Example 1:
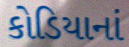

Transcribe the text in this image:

કોડિયાનાં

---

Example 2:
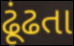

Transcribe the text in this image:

ઢૂંઢતા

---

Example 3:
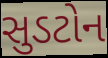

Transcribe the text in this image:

સુડટોન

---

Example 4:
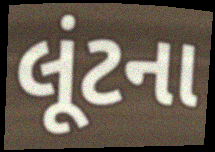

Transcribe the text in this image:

લૂંટના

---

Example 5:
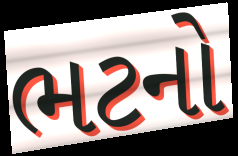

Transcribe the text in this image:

ભટનો